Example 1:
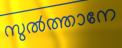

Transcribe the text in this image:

സുൽത്താനേ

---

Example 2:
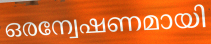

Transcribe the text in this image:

ഒരന്വേഷണമായി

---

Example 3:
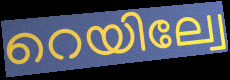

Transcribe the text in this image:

റെയില്വേ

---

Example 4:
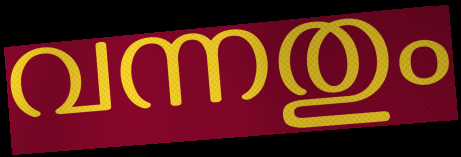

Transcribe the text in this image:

വന്നതും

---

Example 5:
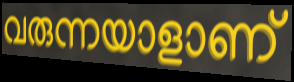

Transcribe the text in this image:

വരുന്നയാളാണ്